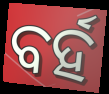
ବର୍ହ